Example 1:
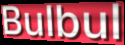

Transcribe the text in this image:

Bulbul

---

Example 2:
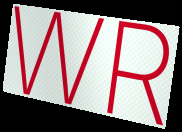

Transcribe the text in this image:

WR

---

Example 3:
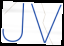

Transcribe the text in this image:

JV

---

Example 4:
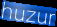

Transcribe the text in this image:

huzur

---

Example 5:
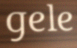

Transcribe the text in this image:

gele